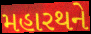
મહારથને